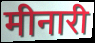
मीनारी